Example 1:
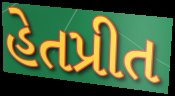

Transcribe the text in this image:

હેતપ્રીત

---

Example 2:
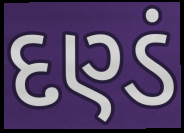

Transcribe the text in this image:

દણ્ડં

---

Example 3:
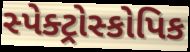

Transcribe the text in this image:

સ્પેક્ટ્રોસ્કોપિક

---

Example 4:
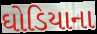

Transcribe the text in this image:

ઘોડિયાના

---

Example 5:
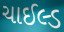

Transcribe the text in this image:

ચાઈલ્ડ